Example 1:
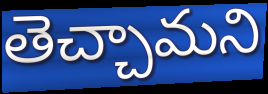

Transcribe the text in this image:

తెచ్చామని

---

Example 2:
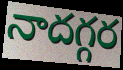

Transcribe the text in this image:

నాదగ్గర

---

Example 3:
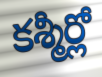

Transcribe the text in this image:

కశ్మీర్లో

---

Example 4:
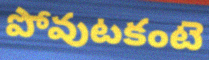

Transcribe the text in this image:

పోవుటకంటె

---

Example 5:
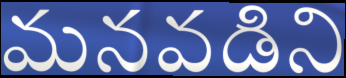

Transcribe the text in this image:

మనవడిని